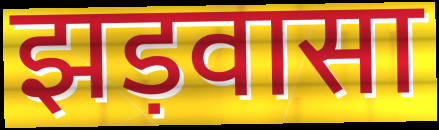
झड़वासा